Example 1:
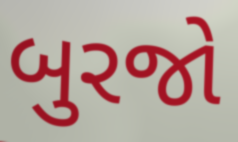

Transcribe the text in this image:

બુરજો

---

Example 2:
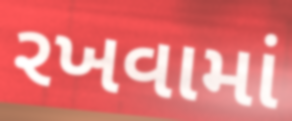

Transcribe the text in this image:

રખવામાં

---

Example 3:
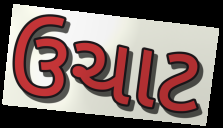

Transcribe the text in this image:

ઉચાટ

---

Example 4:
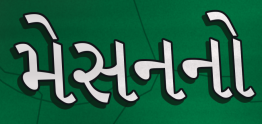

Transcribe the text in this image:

મેસનનો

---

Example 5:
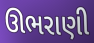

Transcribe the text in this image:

ઊભરાણી